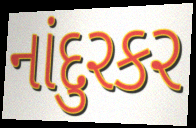
નાંદુરકર